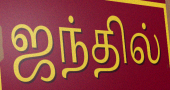
ஜந்தில்